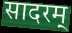
सादरम्